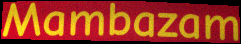
Mambazam